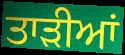
ਤਾੜੀਆਂ